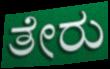
ತೇರು